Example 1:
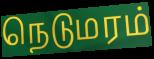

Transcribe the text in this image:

நெடுமரம்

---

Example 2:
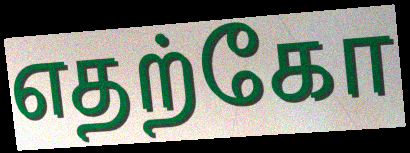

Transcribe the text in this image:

எதற்கோ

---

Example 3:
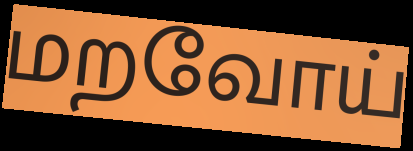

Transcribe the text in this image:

மறவோய்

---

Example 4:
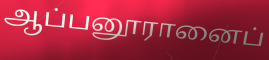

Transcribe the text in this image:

ஆப்பனூரானைப்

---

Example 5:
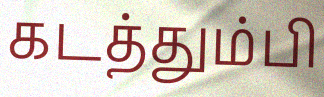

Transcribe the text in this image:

கடத்தும்பி